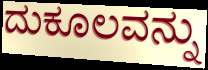
ದುಕೂಲವನ್ನು